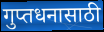
गुप्तधनासाठी